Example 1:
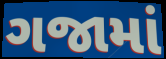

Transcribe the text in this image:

ગજામાં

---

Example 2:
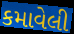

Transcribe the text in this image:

કમાવેલી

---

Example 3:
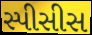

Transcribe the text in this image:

સ્પીસીસ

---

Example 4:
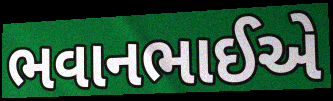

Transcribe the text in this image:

ભવાનભાઈએ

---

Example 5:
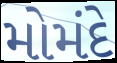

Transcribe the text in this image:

મોમંદે